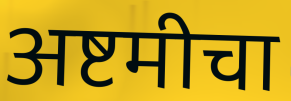
अष्टमीचा